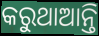
କରୁଥାଆନ୍ତି